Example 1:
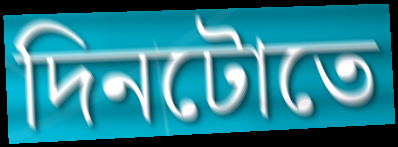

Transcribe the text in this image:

দিনটোতে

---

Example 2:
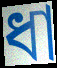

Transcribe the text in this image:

ধা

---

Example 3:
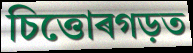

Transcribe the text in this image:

চিত্তোৰগড়ত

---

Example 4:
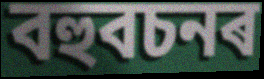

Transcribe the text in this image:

বহুবচনৰ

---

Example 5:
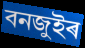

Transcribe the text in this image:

বনজুইৰ